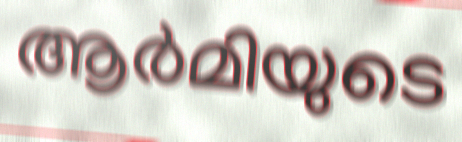
ആർമിയുടെ